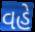
વહે